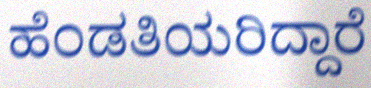
ಹೆಂಡತಿಯರಿದ್ದಾರೆ